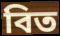
বিত